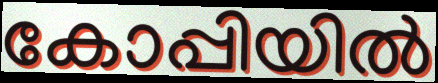
കോപ്പിയിൽ